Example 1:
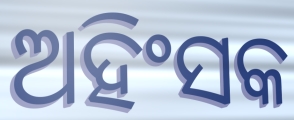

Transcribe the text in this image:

ଅହିଂସକ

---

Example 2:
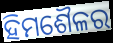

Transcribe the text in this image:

ହିମଶୈଳର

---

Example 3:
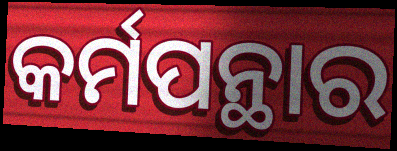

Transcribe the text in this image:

କର୍ମପନ୍ଥାର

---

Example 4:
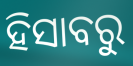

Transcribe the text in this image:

ହିସାବରୁ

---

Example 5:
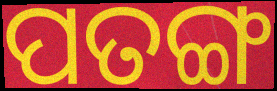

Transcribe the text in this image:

ପତଙ୍ଗ